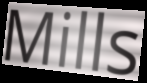
Mills